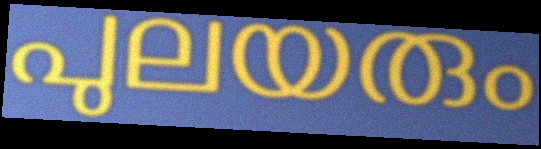
പുലയരും